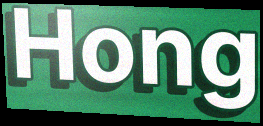
Hong